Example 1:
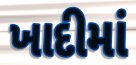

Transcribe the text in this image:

ખાદીમાં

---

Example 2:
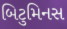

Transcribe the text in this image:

બિટુમિનસ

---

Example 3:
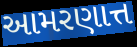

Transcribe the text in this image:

આમરણાત્ત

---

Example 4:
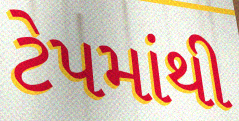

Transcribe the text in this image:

ટેપમાંથી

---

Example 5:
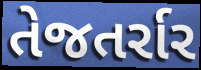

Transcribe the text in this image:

તેજતર્રાર